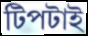
টিপটাই